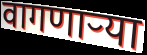
वागणाऱ्या